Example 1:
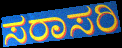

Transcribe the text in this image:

ಸರಾಸರಿ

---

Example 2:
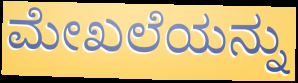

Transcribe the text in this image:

ಮೇಖಲೆಯನ್ನು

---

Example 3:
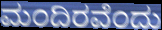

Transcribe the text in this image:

ಮಂದಿರವೆಂದು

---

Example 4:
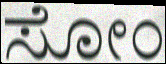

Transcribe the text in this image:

ಸೋಂ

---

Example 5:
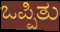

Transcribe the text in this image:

ಒಪ್ಪಿತು